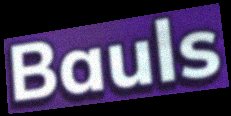
Bauls